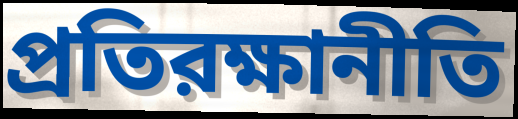
প্রতিরক্ষানীতি